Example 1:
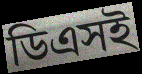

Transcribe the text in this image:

ডিএসই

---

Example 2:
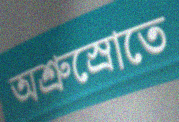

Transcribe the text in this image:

অশ্রুস্রোতে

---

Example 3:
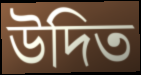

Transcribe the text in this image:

উদিত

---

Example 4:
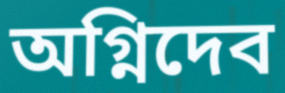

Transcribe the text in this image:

অগ্নিদেব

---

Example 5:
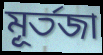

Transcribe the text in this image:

মূর্তজা